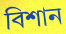
বিশান